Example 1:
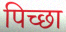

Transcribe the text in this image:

पिच्छा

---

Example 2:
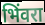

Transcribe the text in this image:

भिंवरा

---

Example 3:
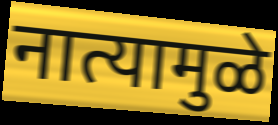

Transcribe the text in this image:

नात्यामुळे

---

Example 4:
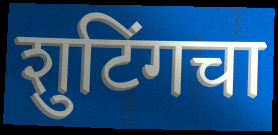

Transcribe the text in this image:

शुटिंगचा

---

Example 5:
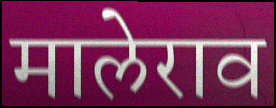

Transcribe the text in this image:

मालेराव